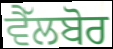
ਵੈੱਲਬੋਰ